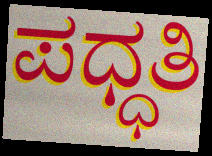
ಪಧ್ಧತಿ